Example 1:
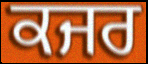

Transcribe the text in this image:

ਕਜਰ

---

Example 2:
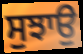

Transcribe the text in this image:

ਸੁਝਾਉ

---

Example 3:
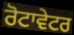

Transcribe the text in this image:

ਰੋਟਾਵੇਟਰ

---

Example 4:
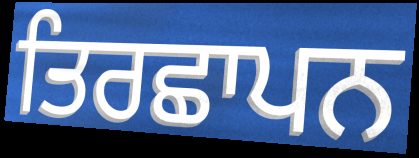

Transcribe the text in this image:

ਤਿਰਛਾਪਨ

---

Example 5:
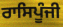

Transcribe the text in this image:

ਰਾਸਿਪੂੰਜੀ